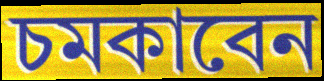
চমকাবেন